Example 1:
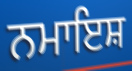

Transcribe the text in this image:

ਨਮਾਇਸ਼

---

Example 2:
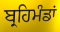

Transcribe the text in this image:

ਬ੍ਰਹਿਮੰਡਾਂ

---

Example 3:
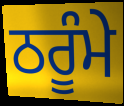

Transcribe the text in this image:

ਠਰੂੰਮੇ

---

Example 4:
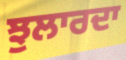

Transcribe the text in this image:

ਝੁਲਾਰਦਾ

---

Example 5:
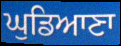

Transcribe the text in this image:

ਘੁਡਿਆਣਾ